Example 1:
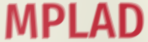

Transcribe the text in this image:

MPLAD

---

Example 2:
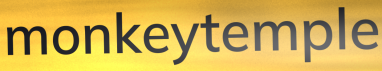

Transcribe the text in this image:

monkeytemple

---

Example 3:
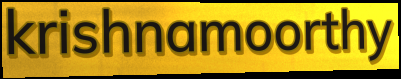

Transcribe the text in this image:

krishnamoorthy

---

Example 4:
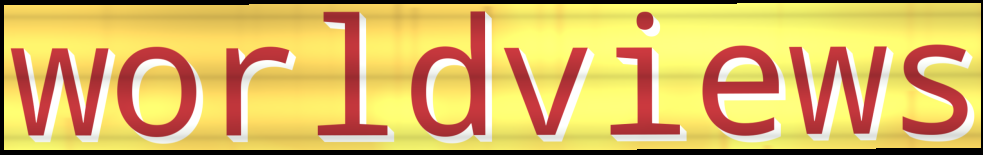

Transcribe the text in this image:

worldviews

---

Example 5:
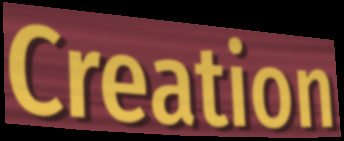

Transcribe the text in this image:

Creation